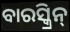
ବାରସ୍କ୍ରିନ୍